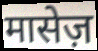
मासेज़